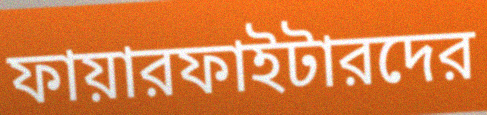
ফায়ারফাইটারদের